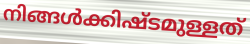
നിങ്ങൾക്കിഷ്ടമുള്ളത്